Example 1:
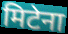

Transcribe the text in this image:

मिटेना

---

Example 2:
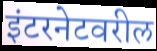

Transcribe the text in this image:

इंटरनेटवरील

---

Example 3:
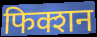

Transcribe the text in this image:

फिक्‍शन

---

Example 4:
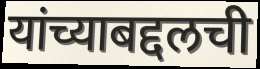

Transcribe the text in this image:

यांच्याबद्दलची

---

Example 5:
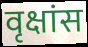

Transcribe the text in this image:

वृक्षांस